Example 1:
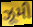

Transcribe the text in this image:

ઝૂમી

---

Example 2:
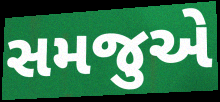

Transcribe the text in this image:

સમજુએ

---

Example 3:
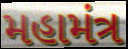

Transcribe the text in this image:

મહામંત્ર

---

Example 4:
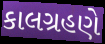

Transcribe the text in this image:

કાલગ્રહણે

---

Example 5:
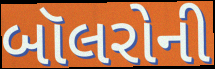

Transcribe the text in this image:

બૉલરોની